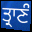
ਤ੍ਰਾਣੰ